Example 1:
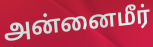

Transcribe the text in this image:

அன்னைமீர்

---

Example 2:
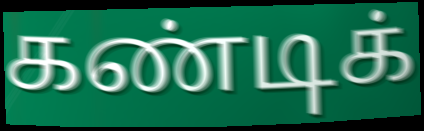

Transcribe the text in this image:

கண்டிக்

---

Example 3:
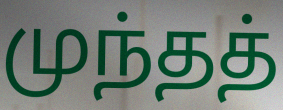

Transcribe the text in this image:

முந்தத்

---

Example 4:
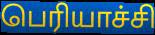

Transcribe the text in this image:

பெரியாச்சி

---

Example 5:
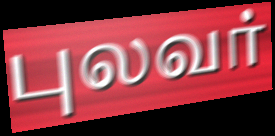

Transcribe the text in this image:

புலவர்